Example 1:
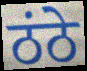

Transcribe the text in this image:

ठंठे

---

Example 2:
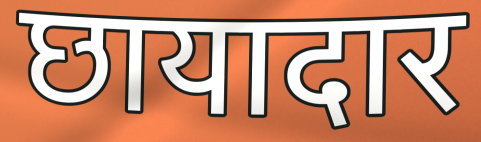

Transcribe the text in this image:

छायादार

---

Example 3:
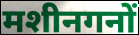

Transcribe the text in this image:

मशीनगनों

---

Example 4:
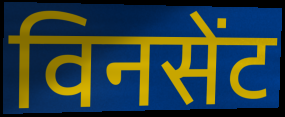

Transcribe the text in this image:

विनसेंट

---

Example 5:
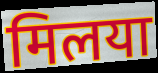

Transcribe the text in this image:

मिलया